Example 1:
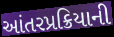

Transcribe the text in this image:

આંતરપ્રક્રિયાની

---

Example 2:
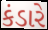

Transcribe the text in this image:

કંડારે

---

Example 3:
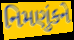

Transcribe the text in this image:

નિમણુંકને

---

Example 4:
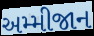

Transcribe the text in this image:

અમ્મીજાન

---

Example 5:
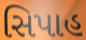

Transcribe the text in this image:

સિપાહ